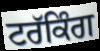
ਟਰੱਕਿੰਗ